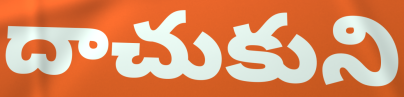
దాచుకుని